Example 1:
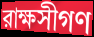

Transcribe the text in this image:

রাক্ষসীগণ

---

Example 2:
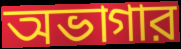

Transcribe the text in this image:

অভাগার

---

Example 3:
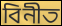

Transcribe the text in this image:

বিনীত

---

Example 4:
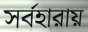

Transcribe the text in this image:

সর্বহারায়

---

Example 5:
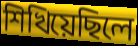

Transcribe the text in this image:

শিখিয়েছিলে